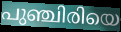
പുഞ്ചിരിയെ